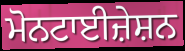
ਮੋਨਟਾਈਜ਼ੇਸ਼ਨ